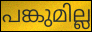
പങ്കുമില്ല